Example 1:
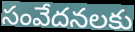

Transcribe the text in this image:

సంవేదనలకు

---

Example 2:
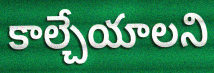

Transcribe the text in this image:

కాల్చేయాలని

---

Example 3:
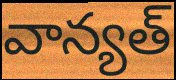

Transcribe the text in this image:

వాన్యత్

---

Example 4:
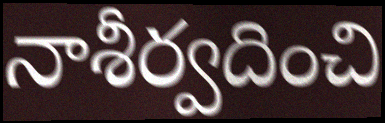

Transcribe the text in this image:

నాశీర్వదించి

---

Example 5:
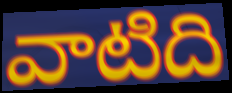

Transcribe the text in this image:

వాటిది